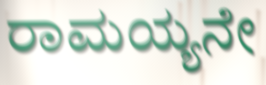
ರಾಮಯ್ಯನೇ